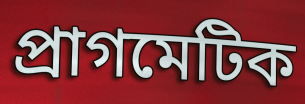
প্ৰাগমেটিক